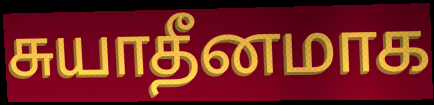
சுயாதீனமாக